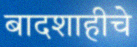
बादशाहीचे